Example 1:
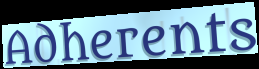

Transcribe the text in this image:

Adherents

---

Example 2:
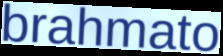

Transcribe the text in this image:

brahmato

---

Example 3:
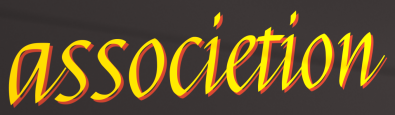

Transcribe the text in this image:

associetion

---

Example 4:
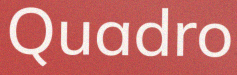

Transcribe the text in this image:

Quadro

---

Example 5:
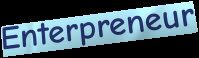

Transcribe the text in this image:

Enterpreneur